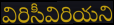
విరిసీవిరియని